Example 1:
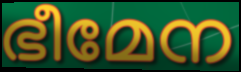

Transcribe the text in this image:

ഭീമേന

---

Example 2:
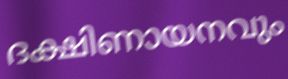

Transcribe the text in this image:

ദക്ഷിണായനവും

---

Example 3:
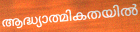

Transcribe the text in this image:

ആദ്ധ്യാത്മികതയിൽ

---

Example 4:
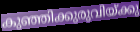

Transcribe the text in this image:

കുഞ്ഞിക്കുരുവിയ്ക്കു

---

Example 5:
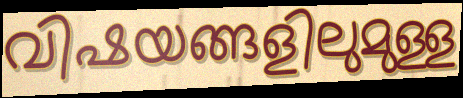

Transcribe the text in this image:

വിഷയങ്ങളിലുമുള്ള